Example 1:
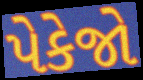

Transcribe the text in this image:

પેકેજો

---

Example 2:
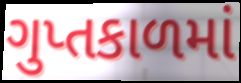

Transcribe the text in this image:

ગુપ્તકાળમાં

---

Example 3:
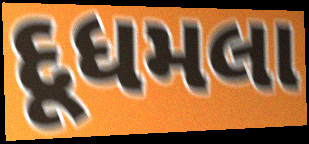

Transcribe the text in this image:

દૂધમલા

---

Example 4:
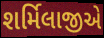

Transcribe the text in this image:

શર્મિલાજીએ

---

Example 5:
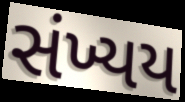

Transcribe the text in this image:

સંખ્યય